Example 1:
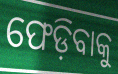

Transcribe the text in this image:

ଫେଡ଼ିବାକୁ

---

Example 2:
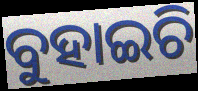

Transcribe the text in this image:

ବୁହାଇଚି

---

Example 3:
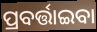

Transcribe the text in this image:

ପ୍ରବର୍ତ୍ତାଇବା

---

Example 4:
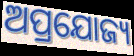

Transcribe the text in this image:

ଅପ୍ରଯୋଜ୍ୟ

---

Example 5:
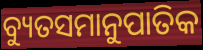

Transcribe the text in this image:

ବ୍ୟୁତସମାନୁପାତିକ